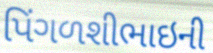
પિંગળશીભાઇની